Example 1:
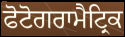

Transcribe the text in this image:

ਫੋਟੋਗਰਾਮੈਟ੍ਰਿਕ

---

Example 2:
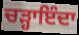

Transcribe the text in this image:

ਚੜ੍ਹਾਇੰਦਾ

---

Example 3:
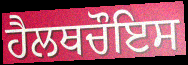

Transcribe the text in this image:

ਹੈਲਥਚੌਇਸ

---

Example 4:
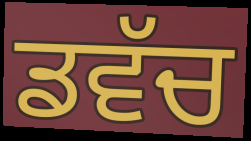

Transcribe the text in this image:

ਡਵੱਚ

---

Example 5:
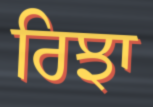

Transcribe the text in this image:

ਰਿਝਾ